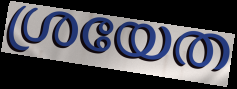
ശ്രയേത